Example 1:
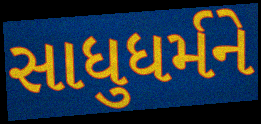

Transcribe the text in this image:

સાધુધર્મને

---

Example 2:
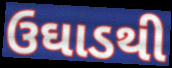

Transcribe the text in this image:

ઉઘાડથી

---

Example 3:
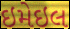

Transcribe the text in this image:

ઇમેઇલ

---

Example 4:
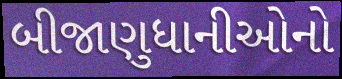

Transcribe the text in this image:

બીજાણુધાનીઓનો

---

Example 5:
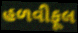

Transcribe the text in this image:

હળવીફૂલ